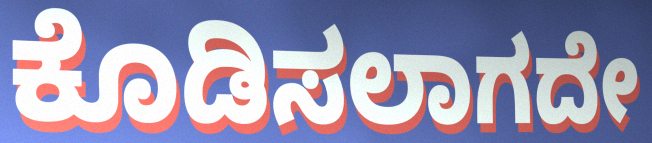
ಕೊಡಿಸಲಾಗದೇ